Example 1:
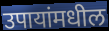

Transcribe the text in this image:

उपायांमधील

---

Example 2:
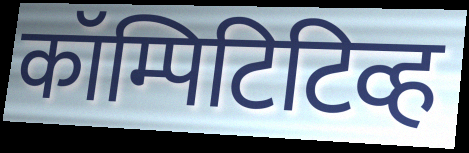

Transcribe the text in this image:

कॉम्पिटिटिव्ह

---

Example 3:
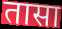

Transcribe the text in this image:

तासा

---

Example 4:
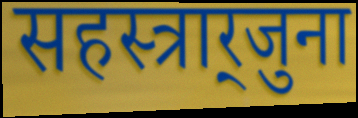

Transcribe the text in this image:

सहस्त्रार्जुना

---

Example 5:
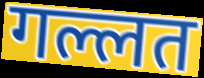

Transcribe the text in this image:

गल्लत